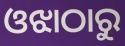
ଓଝାଠାରୁ